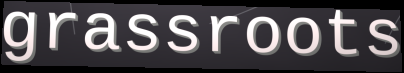
grassroots